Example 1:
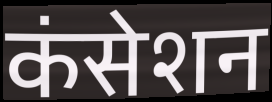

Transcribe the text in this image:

कंसेशन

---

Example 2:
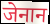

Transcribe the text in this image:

जेनान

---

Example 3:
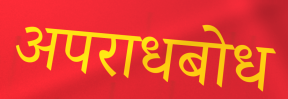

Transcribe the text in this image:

अपराधबोध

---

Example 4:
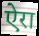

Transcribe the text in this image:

ऐरा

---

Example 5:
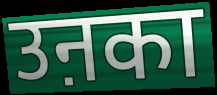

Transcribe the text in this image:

उऩका